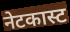
नेटकास्ट